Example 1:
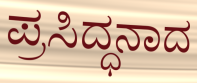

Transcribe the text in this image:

ಪ್ರಸಿದ್ಧನಾದ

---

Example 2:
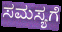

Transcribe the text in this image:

ಸಮಸ್ಯಗೆ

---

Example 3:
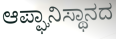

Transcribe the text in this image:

ಆಪ್ಘಾನಿಸ್ಥಾನದ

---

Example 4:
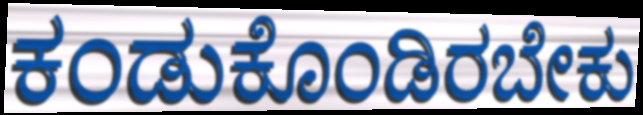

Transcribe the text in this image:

ಕಂಡುಕೊಂಡಿರಬೇಕು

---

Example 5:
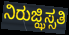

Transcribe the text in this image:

ನಿರುಜ್ಝಿಸ್ಸತಿ